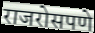
राजरोसपणे